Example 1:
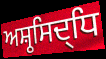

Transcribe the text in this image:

ਅਸ਼੍ਠਸਿਦ੍ਧਿ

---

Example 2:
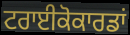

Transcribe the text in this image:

ਟਰਾਈਕੋਕਾਰਡਾਂ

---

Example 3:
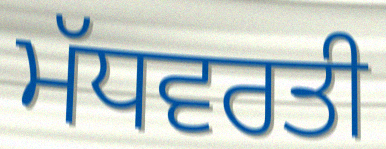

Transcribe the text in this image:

ਮੱਧਵਰਤੀ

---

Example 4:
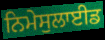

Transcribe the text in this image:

ਨਿਮੇਸੁਲਾਈਡ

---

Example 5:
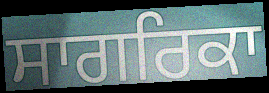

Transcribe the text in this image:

ਸਾਗਰਿਕਾ